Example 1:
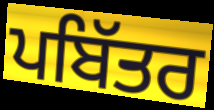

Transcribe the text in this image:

ਪਬਿੱਤਰ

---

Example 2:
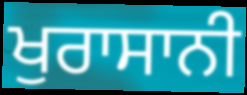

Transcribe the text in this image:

ਖੁਰਾਸਾਨੀ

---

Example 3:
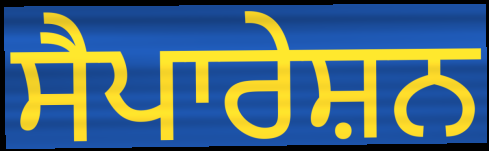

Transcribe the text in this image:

ਸੈਪਾਰੇਸ਼ਨ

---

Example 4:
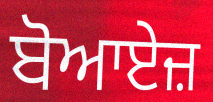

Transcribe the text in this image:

ਬੋਆਏਜ਼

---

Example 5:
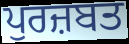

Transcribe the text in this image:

ਪੁਰਜ਼ਬਤ